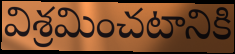
విశ్రమించటానికి